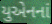
યુએનનાં